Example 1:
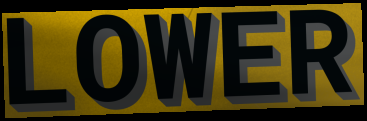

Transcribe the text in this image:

LOWER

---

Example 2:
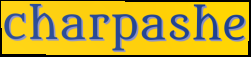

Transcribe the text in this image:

charpashe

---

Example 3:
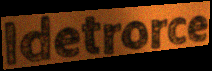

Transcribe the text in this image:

Idetrorce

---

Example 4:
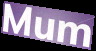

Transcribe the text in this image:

Mum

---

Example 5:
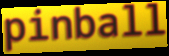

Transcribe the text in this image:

pinball